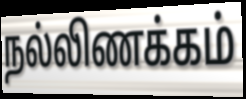
நல்லிணக்கம்